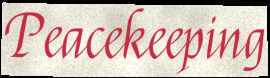
Peacekeeping